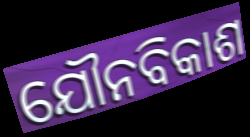
ଯୌନବିକାଶ